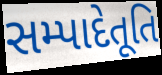
સમ્પાદેતૂતિ